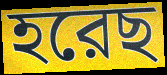
হরেছ